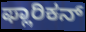
ಫ್ಲಾರಿಕನ್